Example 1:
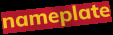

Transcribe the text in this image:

nameplate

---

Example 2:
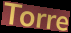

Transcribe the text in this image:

Torre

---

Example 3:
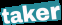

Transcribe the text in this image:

taker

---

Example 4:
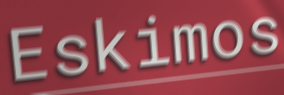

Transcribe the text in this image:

Eskimos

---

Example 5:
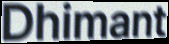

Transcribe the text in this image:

Dhimant